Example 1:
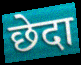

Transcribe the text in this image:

छेदा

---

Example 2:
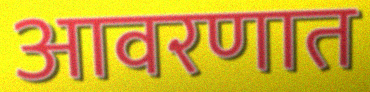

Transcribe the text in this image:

आवरणात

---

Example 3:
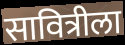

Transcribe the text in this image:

सावित्रीला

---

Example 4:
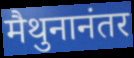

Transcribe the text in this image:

मैथुनानंतर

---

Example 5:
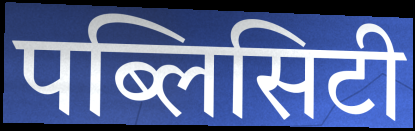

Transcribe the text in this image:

पब्लिसिटी